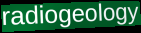
radiogeology